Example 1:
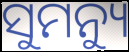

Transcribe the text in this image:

ସୁମନ୍ୟୁ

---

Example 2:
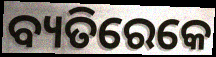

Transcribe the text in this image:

ବ୍ୟତିରେକେ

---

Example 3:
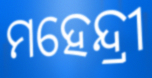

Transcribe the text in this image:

ମହେନ୍ଦ୍ରୀ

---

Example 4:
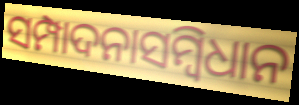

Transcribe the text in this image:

ସମ୍ପାଦନାସମ୍ବିଧାନ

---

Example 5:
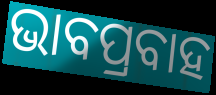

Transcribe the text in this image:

ଭାବପ୍ରବାହ